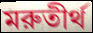
মরুতীর্থ